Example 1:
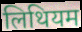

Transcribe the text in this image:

लिथियम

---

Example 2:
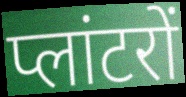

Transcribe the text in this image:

प्लांटरों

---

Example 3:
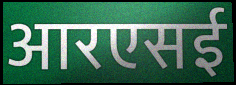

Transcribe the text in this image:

आरएसई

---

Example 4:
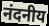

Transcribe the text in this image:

नंदनीय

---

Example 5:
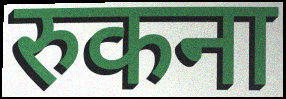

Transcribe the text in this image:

रुकना